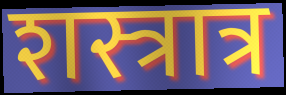
शस्त्रात्र